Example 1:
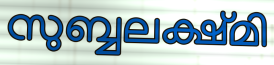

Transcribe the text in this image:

സുബ്ബലക്ഷ്മി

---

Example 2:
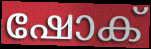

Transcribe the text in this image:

ഷോക്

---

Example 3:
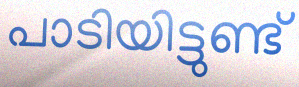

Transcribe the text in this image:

പാടിയിട്ടുണ്ട്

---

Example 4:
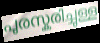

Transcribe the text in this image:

പുരസ്കരിച്ചുള്ള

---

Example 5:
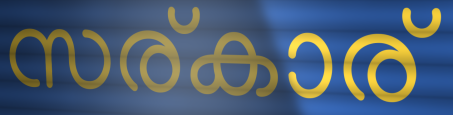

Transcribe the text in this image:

സര്കാര്